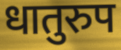
धातुरुप